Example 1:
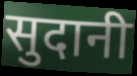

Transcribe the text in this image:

सुदानी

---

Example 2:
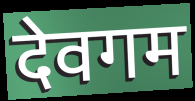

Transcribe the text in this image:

देवगम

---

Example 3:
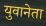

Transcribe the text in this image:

युवानेता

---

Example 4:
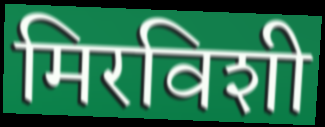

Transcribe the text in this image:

मिरविशी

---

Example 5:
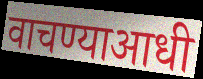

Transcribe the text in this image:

वाचण्याआधी